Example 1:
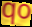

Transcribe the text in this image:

qo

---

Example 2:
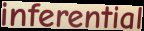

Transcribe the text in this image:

inferential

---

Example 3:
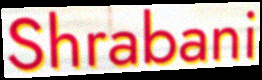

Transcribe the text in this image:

Shrabani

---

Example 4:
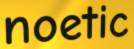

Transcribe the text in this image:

noetic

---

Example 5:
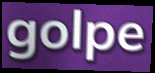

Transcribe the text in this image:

golpe